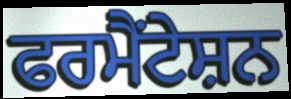
ਫਰਮੈਂਟੇਸ਼ਨ